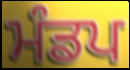
ਮੰਡਪ